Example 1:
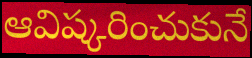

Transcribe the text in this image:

ఆవిష్కరించుకునే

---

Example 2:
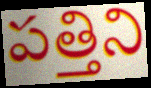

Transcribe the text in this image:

పత్తిని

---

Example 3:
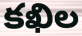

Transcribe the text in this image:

కఖిల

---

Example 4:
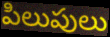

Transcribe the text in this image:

పిలుపులు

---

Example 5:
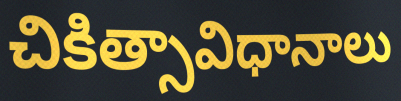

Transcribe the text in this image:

చికిత్సావిధానాలు